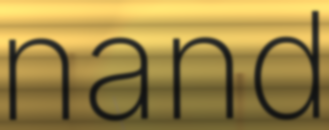
nand